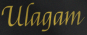
Ulagam